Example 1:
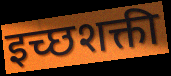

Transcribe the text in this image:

इच्छशक्ती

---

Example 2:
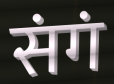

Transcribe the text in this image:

संगं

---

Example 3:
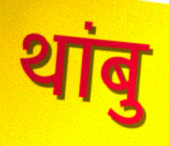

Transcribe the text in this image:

थांबु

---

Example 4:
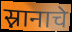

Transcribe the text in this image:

स्नानाचे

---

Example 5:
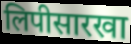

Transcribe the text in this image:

लिपीसारखा